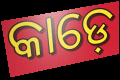
କାଡ଼େ